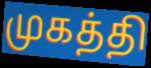
முகத்தி